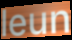
leun